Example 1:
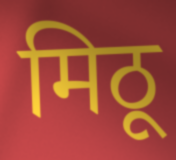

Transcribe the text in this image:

मिठू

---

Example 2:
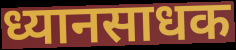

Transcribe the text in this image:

ध्यानसाधक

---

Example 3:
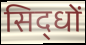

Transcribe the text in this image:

सिद्धों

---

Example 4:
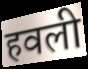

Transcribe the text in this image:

हवली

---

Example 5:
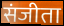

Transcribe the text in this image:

संजीता